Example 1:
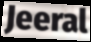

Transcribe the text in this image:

Jeeral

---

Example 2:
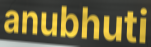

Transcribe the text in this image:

anubhuti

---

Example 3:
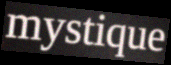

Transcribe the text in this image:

mystique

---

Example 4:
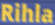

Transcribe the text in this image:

Rihla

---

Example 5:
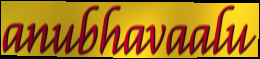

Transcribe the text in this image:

anubhavaalu